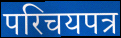
परिचयपत्र